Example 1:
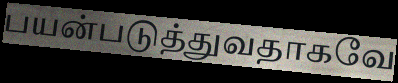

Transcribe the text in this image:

பயன்படுத்துவதாகவே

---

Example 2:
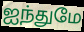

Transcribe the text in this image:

ஐந்துமே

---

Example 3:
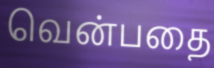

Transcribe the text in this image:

வென்பதை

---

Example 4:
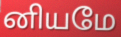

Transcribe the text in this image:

னியமே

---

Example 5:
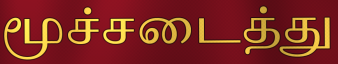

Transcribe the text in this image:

மூச்சடைத்து